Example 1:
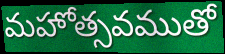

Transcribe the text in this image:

మహోత్సవముతో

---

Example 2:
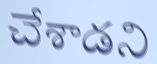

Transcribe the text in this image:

చేశాడని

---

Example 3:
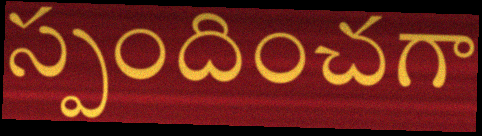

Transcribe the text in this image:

స్పందించగా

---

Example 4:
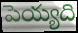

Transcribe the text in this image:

పెయ్యది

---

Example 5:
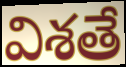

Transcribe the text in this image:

విశతే